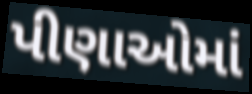
પીણાઓમાં